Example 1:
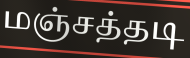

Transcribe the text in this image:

மஞ்சத்தடி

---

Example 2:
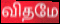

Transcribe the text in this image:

விதமே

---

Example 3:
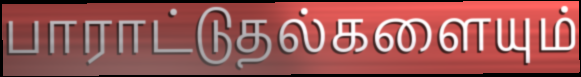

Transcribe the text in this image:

பாராட்டுதல்களையும்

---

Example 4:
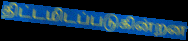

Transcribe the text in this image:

திட்டமிடப்படுகின்றன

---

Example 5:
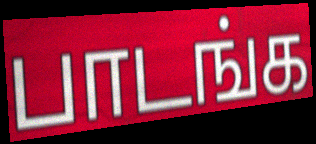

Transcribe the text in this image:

பாடங்க